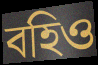
বহিও